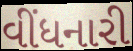
વીંધનારી